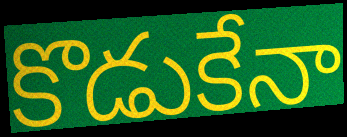
కొడుకేనా